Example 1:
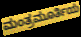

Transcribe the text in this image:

ಮಂತ್ರಮೂರ್ತಿಯ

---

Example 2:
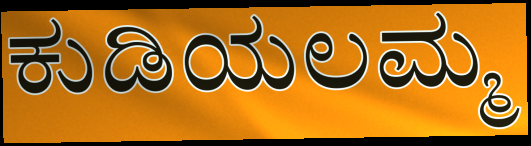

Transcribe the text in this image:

ಕುಡಿಯಲಮ್ಮ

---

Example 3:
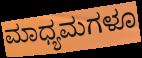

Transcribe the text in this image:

ಮಾಧ್ಯಮಗಳೂ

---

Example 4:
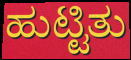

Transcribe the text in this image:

ಹುಟ್ಟಿತು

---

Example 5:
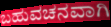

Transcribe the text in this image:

ಬಹುವಚನವಾಗಿ